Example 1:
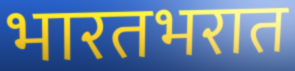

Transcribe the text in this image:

भारतभरात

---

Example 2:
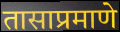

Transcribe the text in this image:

तासाप्रमाणे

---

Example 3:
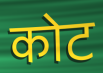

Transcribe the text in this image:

कोट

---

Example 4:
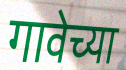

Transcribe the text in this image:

गावेच्या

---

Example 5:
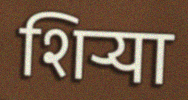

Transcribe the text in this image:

शिर्‍या